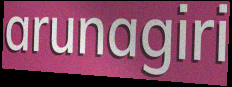
arunagiri